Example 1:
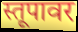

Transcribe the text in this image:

स्तूपावर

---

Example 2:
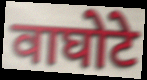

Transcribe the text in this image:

वाघोटे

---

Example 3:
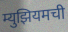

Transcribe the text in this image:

म्युझियमची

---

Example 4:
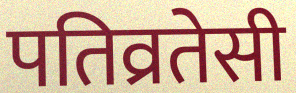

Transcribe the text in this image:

पतिव्रतेसी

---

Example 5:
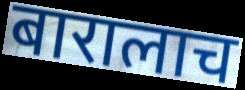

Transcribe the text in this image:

बारालाच